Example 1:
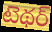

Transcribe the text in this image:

టెథర్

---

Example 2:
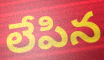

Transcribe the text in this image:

లేపిన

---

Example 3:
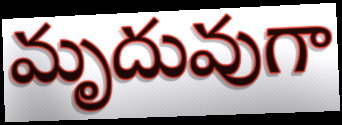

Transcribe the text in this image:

మృదువుగా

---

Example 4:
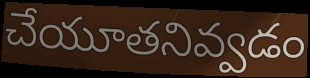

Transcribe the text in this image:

చేయూతనివ్వడం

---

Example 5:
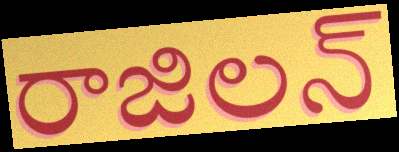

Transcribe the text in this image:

రాజిలన్